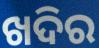
ଖଦିର